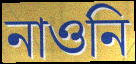
নাওনি